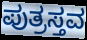
ಪುತ್ರಸ್ತವ